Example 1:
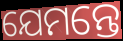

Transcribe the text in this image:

ଯେମନ୍ତେ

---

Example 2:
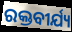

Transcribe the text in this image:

ରକ୍ତବୀର୍ଯ୍ୟ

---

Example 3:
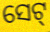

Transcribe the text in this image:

ସେଟ୍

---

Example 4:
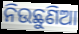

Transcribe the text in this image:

ନିଉଛୁଣିଆ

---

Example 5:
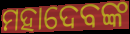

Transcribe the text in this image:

ମହାଦେବଙ୍କ